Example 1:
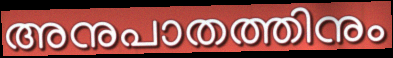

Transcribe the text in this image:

അനുപാതത്തിനും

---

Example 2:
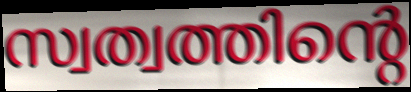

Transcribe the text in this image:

സ്വത്വത്തിന്റെ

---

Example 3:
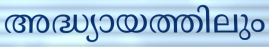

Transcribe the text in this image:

അദ്ധ്യായത്തിലും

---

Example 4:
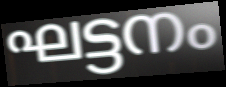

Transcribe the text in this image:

ഘട്ടനം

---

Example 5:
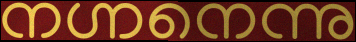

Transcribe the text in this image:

നഗ്നനെന്നു